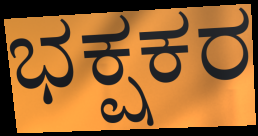
ಭಕ್ಷಕರ